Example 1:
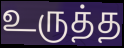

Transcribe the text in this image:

உருத்த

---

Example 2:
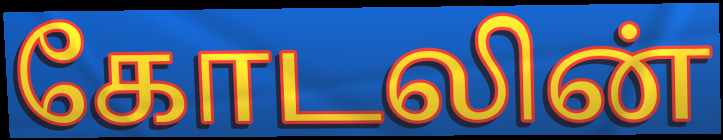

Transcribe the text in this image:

கோடலின்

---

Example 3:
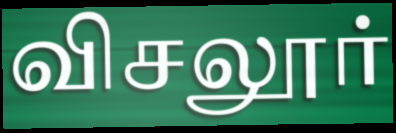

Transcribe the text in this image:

விசலூர்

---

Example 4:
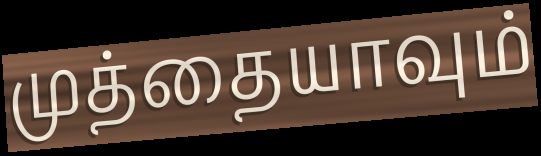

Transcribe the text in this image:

முத்தையாவும்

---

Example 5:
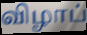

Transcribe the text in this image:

விழாப்